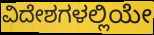
ವಿದೇಶಗಳಲ್ಲಿಯೇ